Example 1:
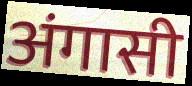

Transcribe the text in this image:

अंगासी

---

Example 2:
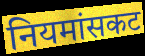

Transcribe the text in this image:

नियमांसकट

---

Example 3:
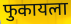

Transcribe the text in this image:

फुकायला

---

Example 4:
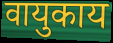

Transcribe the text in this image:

वायुकाय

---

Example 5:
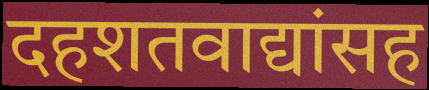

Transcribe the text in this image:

दहशतवाद्यांसह